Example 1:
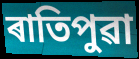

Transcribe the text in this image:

ৰাতিপুৱা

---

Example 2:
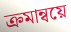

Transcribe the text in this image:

ক্ৰমান্বয়ে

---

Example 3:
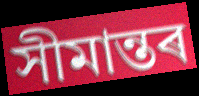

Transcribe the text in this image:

সীমান্তৰ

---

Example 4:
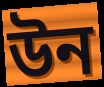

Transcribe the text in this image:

উন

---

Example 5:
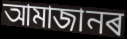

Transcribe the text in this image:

আমাজানৰ